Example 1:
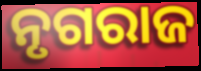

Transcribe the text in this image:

ନୃଗରାଜ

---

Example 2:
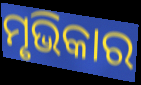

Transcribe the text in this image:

ମୃଭିକାର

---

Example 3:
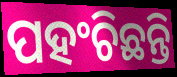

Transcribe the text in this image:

ପହଂଚିଛନ୍ତି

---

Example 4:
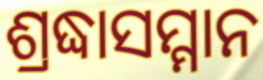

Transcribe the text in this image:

ଶ୍ରଦ୍ଧାସମ୍ମାନ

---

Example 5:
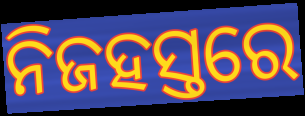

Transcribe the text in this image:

ନିଜହସ୍ତରେ